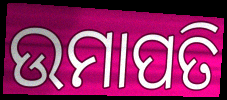
ଉମାପତି